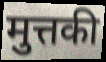
मुत्तकी